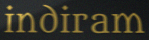
indiram